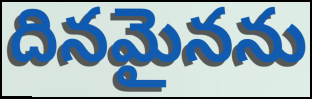
దినమైనను